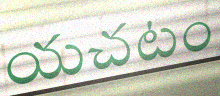
యచటం